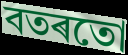
বতৰতো